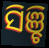
ସିଞ୍ଚି